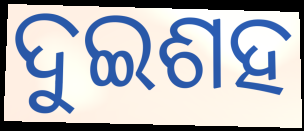
ଦୁଇଶହ